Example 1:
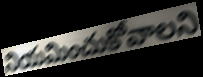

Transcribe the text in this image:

నియమించుకోవాలని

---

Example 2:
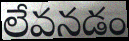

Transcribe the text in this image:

లేవనడం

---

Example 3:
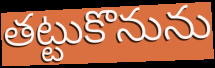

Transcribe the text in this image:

తట్టుకొనును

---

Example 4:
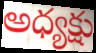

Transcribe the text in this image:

అధ్యక్షు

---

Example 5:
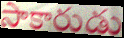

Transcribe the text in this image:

సాకారుడు